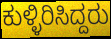
ಕುಳ್ಳಿರಿಸಿದ್ದರು